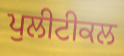
ਪੁਲੀਟੀਕਲ